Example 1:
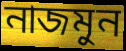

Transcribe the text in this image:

নাজমুন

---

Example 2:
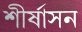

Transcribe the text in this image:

শীর্ষাসন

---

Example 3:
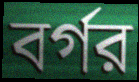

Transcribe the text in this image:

বর্গর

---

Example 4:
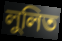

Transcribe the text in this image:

লুলিত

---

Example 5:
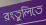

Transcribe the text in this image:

রংতুলিতে